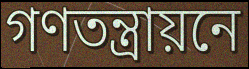
গণতন্ত্রায়নে